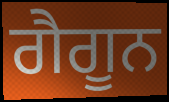
ਗੈਗੂਨ